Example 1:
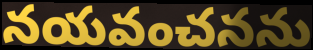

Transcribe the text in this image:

నయవంచనను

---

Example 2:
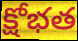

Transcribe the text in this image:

క్షోభత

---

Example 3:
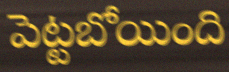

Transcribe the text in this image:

పెట్టబోయింది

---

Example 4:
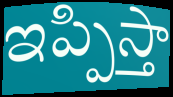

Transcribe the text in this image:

ఇప్పిస్తా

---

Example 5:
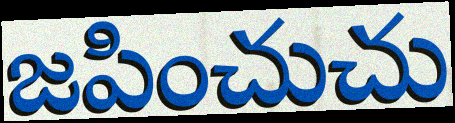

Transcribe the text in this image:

జపించుచు